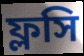
ফ্লসি